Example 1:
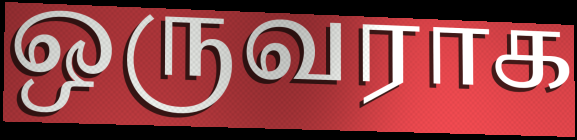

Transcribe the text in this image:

ஒருவராக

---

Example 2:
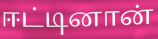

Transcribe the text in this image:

ஈட்டினான்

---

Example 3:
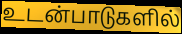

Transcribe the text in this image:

உடன்பாடுகளில்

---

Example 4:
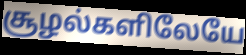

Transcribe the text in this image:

சூழல்களிலேயே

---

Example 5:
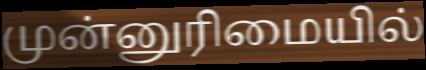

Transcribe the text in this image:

முன்னுரிமையில்